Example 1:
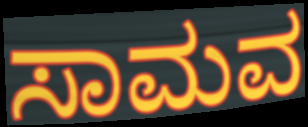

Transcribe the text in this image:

ಸಾಮವ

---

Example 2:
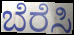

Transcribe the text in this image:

ಬೆರೆಸಿ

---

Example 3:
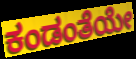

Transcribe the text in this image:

ಕಂಡಂತೆಯೇ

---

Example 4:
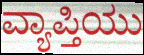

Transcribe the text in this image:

ವ್ಯಾಪ್ತಿಯು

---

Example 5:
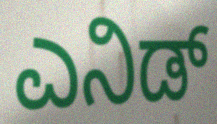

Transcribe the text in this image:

ಎನಿಡ್